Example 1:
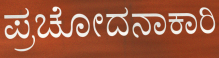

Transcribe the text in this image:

ಪ್ರಚೋದನಾಕಾರಿ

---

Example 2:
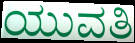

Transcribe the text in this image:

ಯುವತಿ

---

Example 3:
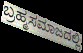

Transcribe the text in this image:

ಬ್ರಹ್ಮಸಮಾಜದಲ್ಲಿ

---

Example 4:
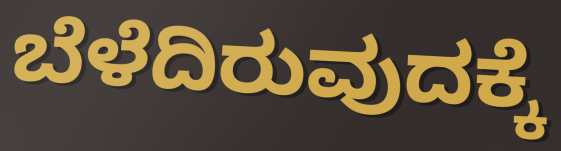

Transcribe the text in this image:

ಬೆಳೆದಿರುವುದಕ್ಕೆ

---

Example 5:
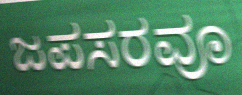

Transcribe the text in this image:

ಜಪಸರವೂ